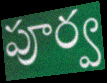
పూర్వ